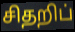
சிதறிப்